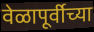
वेळापूर्वीच्या